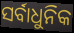
ସର୍ବାଧୁନିକ